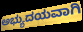
ಅಭ್ಯುದಯವಾಗಿ